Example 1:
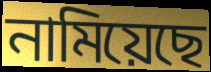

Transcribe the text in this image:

নামিয়েছে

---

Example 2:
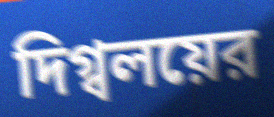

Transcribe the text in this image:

দিগ্বলয়ের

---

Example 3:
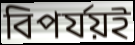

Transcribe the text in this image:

বিপর্যয়ই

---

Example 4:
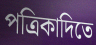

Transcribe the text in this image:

পত্রিকাদিতে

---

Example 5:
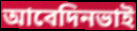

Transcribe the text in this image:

আবেদিনভাই